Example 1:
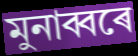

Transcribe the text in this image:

মুনাব্বৰে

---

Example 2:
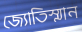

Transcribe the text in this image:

জ্যোতিস্মান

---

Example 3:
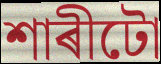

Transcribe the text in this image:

শাৰীটো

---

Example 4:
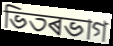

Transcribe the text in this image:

ভিতৰভাগ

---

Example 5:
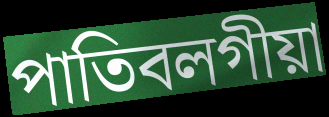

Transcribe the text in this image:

পাতিবলগীয়া